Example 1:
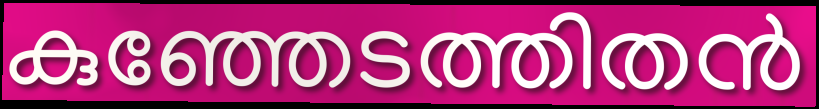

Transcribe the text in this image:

കുഞ്ഞേടത്തിതൻ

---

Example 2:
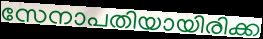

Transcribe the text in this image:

സേനാപതിയായിരിക്ക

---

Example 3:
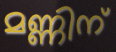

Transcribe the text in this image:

മണ്ണിന്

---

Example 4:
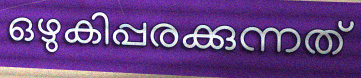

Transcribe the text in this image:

ഒഴുകിപ്പരക്കുന്നത്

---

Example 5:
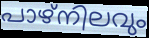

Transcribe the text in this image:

പാഴ്നിലവും